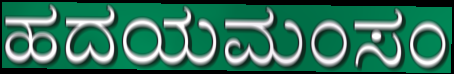
ಹದಯಮಂಸಂ